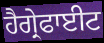
ਹੈਗ੍ਰੇਫਾਈਟ